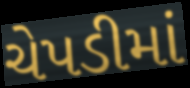
ચેપડીમાં